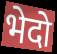
भेदो